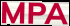
MPA